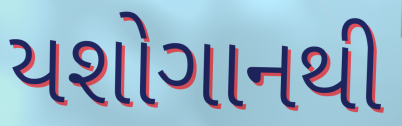
યશોગાનથી